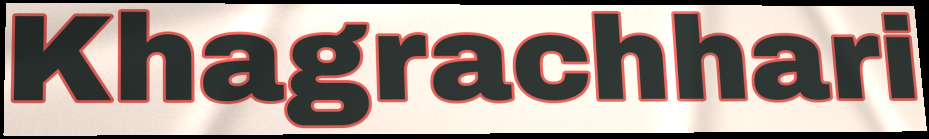
Khagrachhari